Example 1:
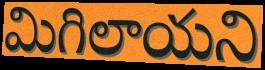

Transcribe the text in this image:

మిగిలాయని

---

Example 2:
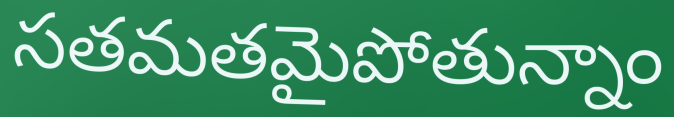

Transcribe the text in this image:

సతమతమైపోతున్నాం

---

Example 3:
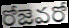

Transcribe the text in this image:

రోజెవరో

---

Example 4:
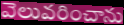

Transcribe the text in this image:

వెలువరించాను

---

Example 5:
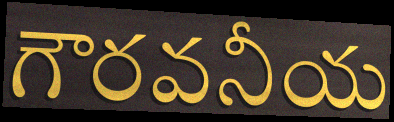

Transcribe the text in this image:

గౌరవనీయ